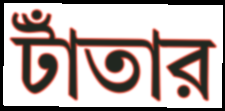
টাঁতার